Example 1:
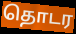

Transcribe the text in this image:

தொடர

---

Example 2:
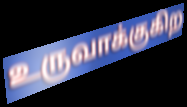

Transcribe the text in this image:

உருவாக்குகிற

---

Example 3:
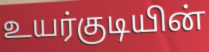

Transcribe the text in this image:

உயர்குடியின்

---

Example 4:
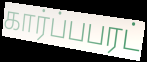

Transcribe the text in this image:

கார்ப்பபரட்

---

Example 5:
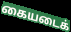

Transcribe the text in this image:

கையடைக்